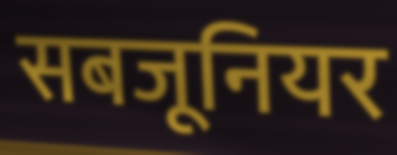
सबजूनियर